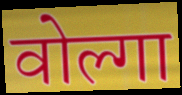
वोल्गा